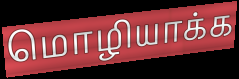
மொழியாக்க